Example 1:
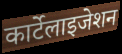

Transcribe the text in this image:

कार्टेलाइजेशन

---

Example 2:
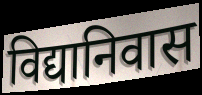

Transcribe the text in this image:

विद्यानिवास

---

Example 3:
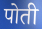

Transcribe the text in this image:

पोती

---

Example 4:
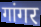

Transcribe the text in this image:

गांगर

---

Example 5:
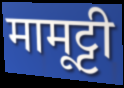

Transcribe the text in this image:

मामूट्टी